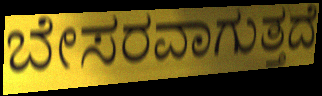
ಬೇಸರವಾಗುತ್ತದೆ